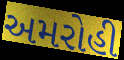
અમરોહી